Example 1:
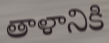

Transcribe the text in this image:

తాళానికి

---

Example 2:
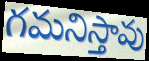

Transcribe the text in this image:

గమనిస్తావు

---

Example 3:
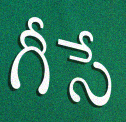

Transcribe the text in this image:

గీసే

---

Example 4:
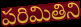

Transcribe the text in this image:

పరిమితిని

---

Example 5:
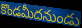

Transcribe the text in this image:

కొండమీదనుండు